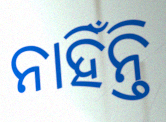
ନାହିଁନ୍ତି